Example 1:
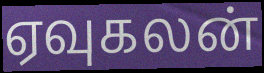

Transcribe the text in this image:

ஏவுகலன்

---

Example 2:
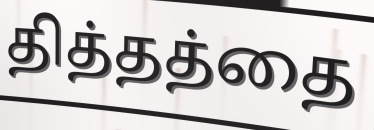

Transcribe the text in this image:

தித்தத்தை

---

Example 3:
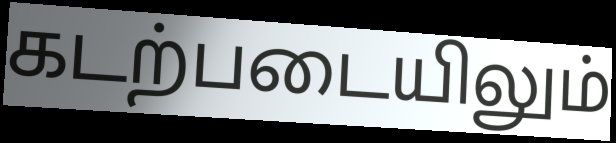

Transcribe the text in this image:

கடற்படையிலும்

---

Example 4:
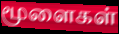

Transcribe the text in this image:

மூளைகள்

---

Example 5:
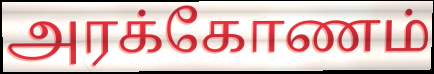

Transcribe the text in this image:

அரக்கோணம்